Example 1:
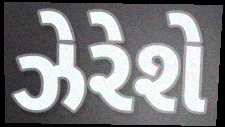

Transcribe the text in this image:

ઝેરેશે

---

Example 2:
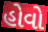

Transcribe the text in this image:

હોવો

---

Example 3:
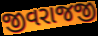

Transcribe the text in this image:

જીવરાજજી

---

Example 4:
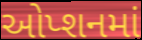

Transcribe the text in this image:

ઓપ્શનમાં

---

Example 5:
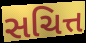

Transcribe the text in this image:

સચિત્ત